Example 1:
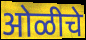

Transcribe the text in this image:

ओळीचे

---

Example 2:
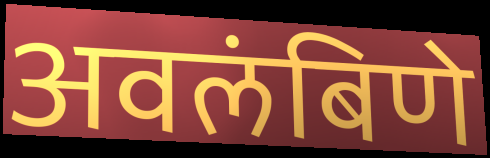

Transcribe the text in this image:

अवलंबिणे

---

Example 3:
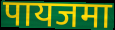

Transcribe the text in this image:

पायजमा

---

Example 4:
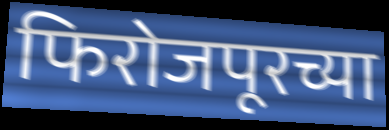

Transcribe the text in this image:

फिरोजपूरच्या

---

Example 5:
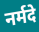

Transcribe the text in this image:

नर्मदे